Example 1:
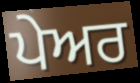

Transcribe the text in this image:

ਪੇਅਰ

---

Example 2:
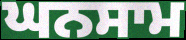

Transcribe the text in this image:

ਘਨਸਾਮ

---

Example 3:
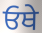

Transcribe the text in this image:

ਓਥੇ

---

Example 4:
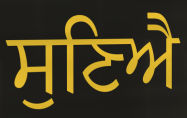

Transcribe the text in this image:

ਸੁਣਿਐ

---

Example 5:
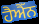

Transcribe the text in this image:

ਹੈਐੱਨ